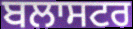
ਬਲਾਸਟਰ